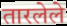
तारलेले